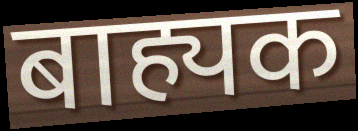
बाह्यक